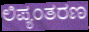
ಲಿಪ್ಯಂತರಣ